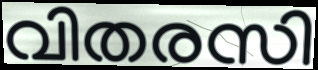
വിതരസി